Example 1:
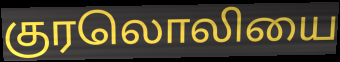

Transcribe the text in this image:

குரலொலியை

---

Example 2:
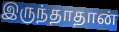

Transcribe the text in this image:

இருந்தாதான்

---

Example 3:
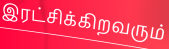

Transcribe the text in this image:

இரட்சிக்கிறவரும்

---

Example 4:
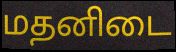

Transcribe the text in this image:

மதனிடை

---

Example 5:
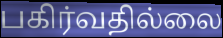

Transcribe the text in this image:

பகிர்வதில்லை